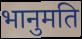
भानुमति